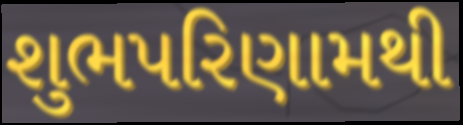
શુભપરિણામથી